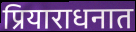
प्रियाराधनात